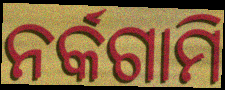
ନର୍କଗାମି